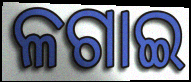
ଳଗାଇ